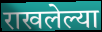
राखलेल्या